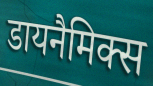
डायनैमिक्स